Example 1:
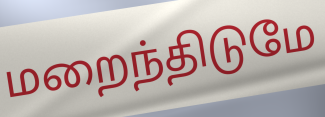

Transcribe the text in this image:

மறைந்திடுமே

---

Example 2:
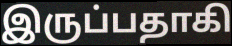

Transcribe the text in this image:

இருப்பதாகி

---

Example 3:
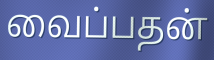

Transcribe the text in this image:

வைப்பதன்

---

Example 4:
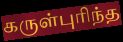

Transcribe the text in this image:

கருள்புரிந்த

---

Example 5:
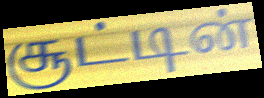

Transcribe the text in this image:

சூட்டின்